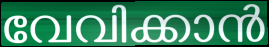
വേവിക്കാൻ